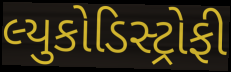
લ્યુકોડિસ્ટ્રોફી